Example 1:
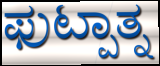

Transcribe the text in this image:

ಫುಟ್ಪಾತ್ನ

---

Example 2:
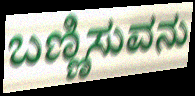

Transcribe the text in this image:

ಬಣ್ಣಿಸುವನು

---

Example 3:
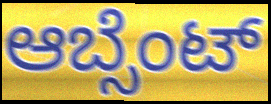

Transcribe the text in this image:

ಆಬ್ಸೆಂಟ್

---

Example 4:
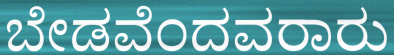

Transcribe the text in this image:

ಬೇಡವೆಂದವರಾರು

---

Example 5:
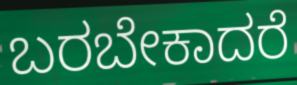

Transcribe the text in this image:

ಬರಬೇಕಾದರೆ